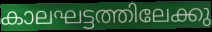
കാലഘട്ടത്തിലേക്കു